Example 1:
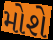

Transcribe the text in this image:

મોશે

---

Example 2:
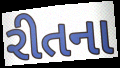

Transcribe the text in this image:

રીતના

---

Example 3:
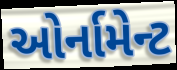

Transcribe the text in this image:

ઓર્નામેન્ટ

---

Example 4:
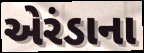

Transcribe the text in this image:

એરંડાના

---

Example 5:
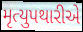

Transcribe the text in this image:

મૃત્યુપથારીએ